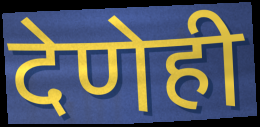
देणेही